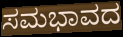
ಸಮಭಾವದ